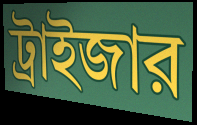
ট্রাইজার